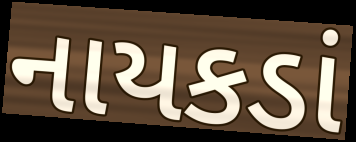
નાયકડાં